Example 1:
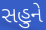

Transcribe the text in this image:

સહુને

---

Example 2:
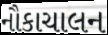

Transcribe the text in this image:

નૌકાચાલન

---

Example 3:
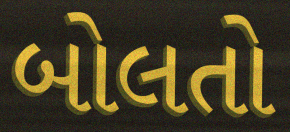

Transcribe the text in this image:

બોલતો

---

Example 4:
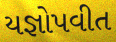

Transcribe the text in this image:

યજ્ઞોપવીત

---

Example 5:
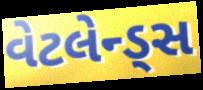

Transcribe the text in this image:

વેટલેન્ડ્સ